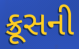
ક્રૂસની